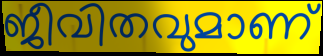
ജീവിതവുമാണ്